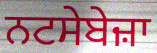
ਨਟਸੇਬੇਜ਼ਾ